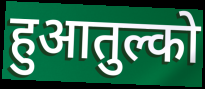
हुआतुल्को